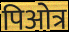
पिओत्र